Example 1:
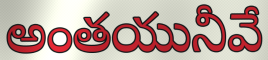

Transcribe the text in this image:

అంతయునీవే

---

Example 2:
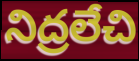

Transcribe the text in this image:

నిద్రలేచి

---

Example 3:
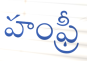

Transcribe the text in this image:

హంఫ్రీ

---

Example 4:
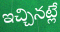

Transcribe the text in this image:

ఇచ్చినట్లే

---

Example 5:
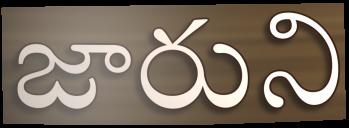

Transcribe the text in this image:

జారుని